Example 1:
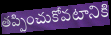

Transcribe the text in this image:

తప్పించుకోవటానికి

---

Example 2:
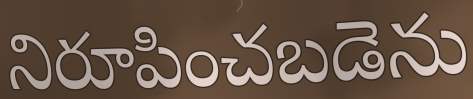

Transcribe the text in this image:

నిరూపించబడెను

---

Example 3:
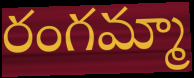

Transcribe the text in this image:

రంగమ్మా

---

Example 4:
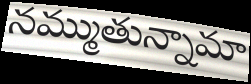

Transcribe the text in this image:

నమ్ముతున్నామా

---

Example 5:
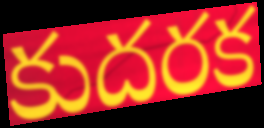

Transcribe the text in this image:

కుదరక